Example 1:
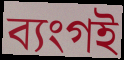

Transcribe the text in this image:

ব্যংগই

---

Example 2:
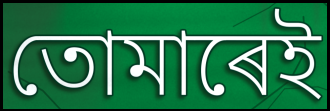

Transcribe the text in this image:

তোমাৰেই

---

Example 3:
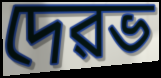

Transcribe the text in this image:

দেৱভ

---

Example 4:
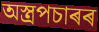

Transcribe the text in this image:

অস্ত্ৰপচাৰৰ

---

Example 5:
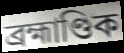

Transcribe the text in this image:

ব্ৰহ্মাণ্ডিক